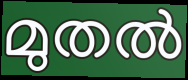
മുതൽ